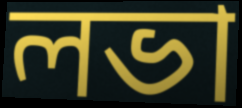
লভা